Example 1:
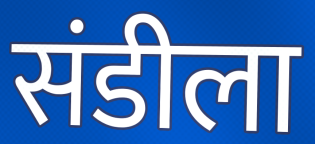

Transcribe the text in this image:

संडीला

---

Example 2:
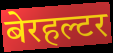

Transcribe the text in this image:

बेरहल्टर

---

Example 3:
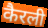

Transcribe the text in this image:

कैरली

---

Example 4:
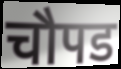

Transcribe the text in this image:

चौपड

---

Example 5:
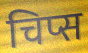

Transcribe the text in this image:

चिप्‍स